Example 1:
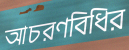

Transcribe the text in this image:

আচরণবিধির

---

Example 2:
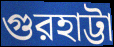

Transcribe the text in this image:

গুরহাট্টা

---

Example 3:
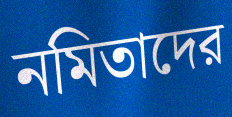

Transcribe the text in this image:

নমিতাদের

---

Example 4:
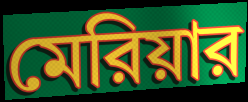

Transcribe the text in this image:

মেরিয়ার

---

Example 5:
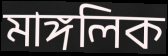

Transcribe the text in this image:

মাঙ্গলিক